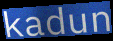
kadun